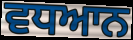
ਵਧਆਨ